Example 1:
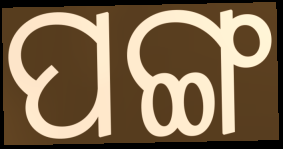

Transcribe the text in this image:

ପଙ୍ଗ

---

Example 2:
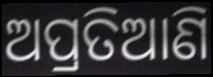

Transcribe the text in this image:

ଅପ୍ରତିଆଣି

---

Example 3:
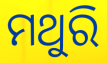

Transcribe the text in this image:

ମଥୁରି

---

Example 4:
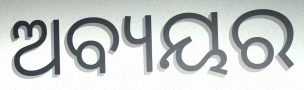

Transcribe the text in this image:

ଅବ୍ୟୟର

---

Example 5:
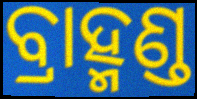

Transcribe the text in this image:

ବ୍ରାହ୍ମଣ୍ଡ